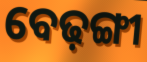
ବେଢ଼ଙ୍ଗୀ